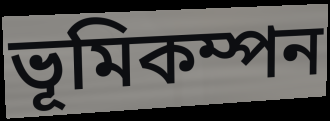
ভূমিকম্পন